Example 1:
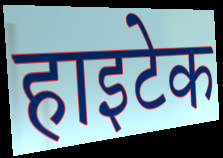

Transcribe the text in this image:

हाइटेक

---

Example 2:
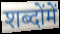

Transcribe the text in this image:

शब्दोंमें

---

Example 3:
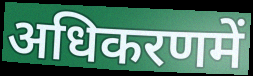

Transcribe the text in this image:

अधिकरणमें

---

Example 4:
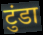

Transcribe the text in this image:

टुंडा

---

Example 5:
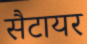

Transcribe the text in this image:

सैटायर